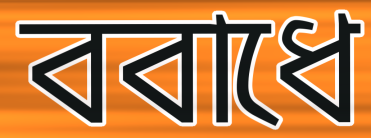
ববাধে